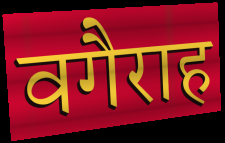
वगैराह